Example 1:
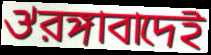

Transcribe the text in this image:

ঔরঙ্গাবাদেই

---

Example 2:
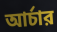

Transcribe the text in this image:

আর্চার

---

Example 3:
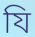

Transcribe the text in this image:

যি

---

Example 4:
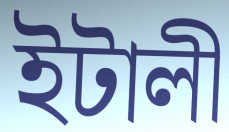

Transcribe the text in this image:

ইটালী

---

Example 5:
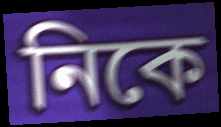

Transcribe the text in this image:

নিকে